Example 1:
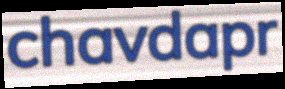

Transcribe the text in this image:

chavdapr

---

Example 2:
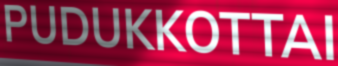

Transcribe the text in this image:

PUDUKKOTTAI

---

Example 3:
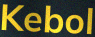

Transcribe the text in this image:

Kebol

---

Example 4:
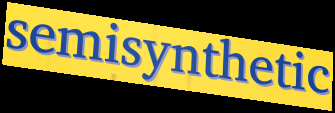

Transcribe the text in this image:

semisynthetic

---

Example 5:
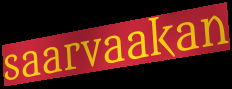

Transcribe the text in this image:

saarvaakan